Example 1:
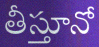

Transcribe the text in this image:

తీస్తూనో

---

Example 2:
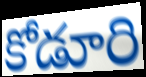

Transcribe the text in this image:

కోడూరి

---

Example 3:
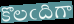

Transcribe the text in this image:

కొలఁదిగా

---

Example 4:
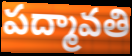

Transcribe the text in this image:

పద్మావతి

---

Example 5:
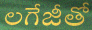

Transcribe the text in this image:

లగేజీతో